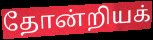
தோன்றியக்